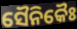
ସୈନିକୈଃ